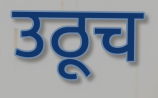
उठूच